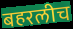
बहरलीच